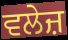
ਵਲੇਜ਼